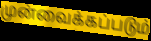
முன்வைக்கப்படும்